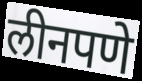
लीनपणे